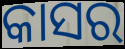
କାସର